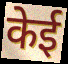
केई